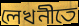
লেখনীতে